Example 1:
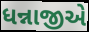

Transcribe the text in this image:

ધન્નાજીએ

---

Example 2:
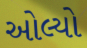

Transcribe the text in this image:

ઓલ્યો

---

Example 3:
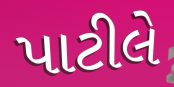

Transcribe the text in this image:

પાટીલે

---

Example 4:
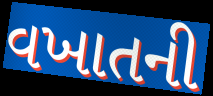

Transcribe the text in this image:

વખાતની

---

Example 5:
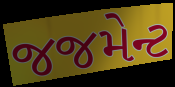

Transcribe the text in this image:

જજમેન્ટ